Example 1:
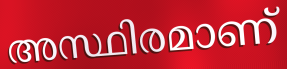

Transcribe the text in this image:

അസ്ഥിരമാണ്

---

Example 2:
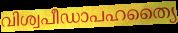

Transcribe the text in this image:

വിശ്വപീഡാപഹത്യൈ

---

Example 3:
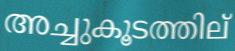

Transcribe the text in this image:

അച്ചുകൂടത്തില്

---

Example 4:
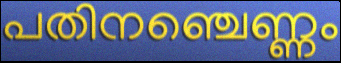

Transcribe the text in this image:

പതിനഞ്ചെണ്ണം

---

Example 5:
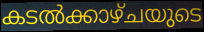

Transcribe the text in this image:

കടൽക്കാഴ്ചയുടെ